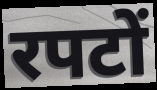
रपटों